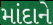
માંદાને